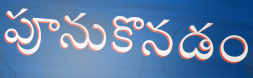
పూనుకొనడం